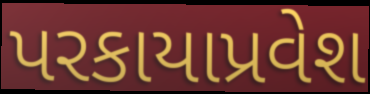
પરકાયાપ્રવેશ